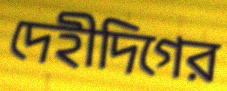
দেহীদিগের